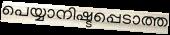
പെയ്യാനിഷ്ടപ്പെടാത്ത